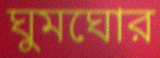
ঘুমঘোর